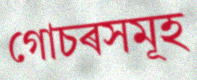
গোচৰসমূহ